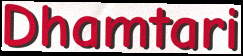
Dhamtari